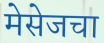
मेसेजचा